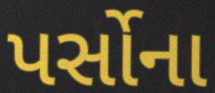
પર્સોના